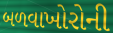
બળવાખોરોની